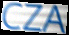
CZA